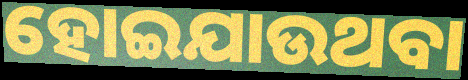
ହୋଇଯାଉଥବା